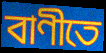
বাণীতে